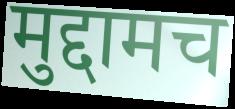
मुद्दामच